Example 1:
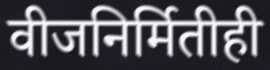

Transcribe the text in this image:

वीजनिर्मितीही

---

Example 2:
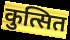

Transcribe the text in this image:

कुत्सित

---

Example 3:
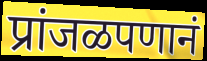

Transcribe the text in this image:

प्रांजळपणानं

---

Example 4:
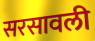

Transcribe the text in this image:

सरसावली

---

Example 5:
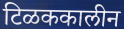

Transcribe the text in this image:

टिळककालीन